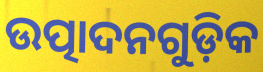
ଉତ୍ପାଦନଗୁଡ଼ିକ